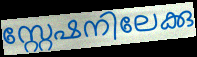
സ്റ്റേഷനിലേക്കു